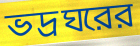
ভদ্রঘরের